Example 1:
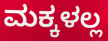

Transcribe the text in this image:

ಮಕ್ಕಳಲ್ಲ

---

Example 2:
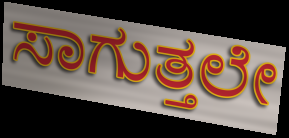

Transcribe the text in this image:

ಸಾಗುತ್ತಲೇ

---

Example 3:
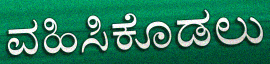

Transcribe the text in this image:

ವಹಿಸಿಕೊಡಲು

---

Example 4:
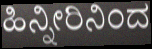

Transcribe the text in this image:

ಹಿನ್ನೀರಿನಿಂದ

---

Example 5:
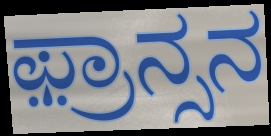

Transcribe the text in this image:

ಫ಼್ರಾನ್ಸನ